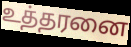
உத்தரனை